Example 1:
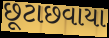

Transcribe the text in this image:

છૂટાછવાયા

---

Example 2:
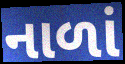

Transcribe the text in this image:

નાળાં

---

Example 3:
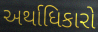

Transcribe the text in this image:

અર્થાધિકારો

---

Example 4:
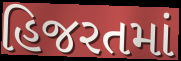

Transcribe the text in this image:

હિજરતમાં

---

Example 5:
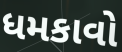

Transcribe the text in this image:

ધમકાવો